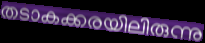
തടാകക്കരയിലിരുന്നു